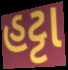
હટ્ટા